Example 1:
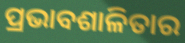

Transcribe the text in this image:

ପ୍ରଭାବଶାଳିତାର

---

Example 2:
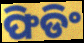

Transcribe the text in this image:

ଫିଡିଂ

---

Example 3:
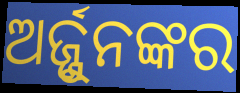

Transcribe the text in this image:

ଅର୍ଜ୍ଜୁନଙ୍କର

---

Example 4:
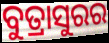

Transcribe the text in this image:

ବୁତ୍ରାସୁରର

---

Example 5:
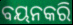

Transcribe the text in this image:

ବୟନକରି